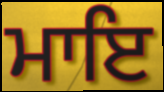
ਮਾਇ